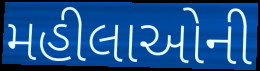
મહીલાઓની